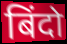
बिंदो